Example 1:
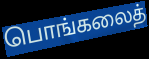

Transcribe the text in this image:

பொங்கலைத்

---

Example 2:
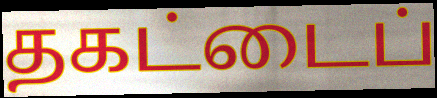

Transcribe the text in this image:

தகட்டைப்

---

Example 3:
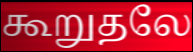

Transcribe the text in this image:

கூறுதலே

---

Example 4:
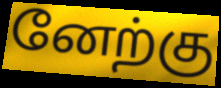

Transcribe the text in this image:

னேற்கு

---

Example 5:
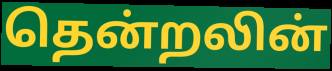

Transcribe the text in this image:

தென்றலின்